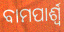
ବାମପାର୍ଶ୍ଵ